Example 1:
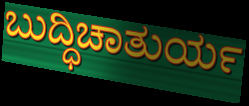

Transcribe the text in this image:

ಬುದ್ಧಿಚಾತುರ್ಯ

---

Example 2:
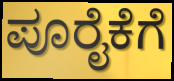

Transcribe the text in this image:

ಪೂರೈಕೆಗೆ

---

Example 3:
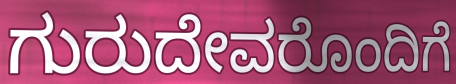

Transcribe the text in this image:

ಗುರುದೇವರೊಂದಿಗೆ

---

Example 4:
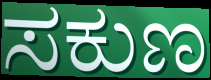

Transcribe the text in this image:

ಸಕುಣ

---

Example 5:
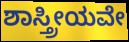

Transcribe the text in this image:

ಶಾಸ್ತ್ರೀಯವೇ